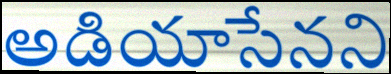
అడియాసేనని